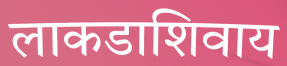
लाकडाशिवाय